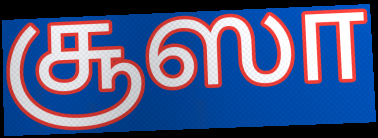
சூஸா